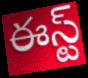
ఈస్ట్